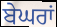
ਬੇਘਰਾਂ